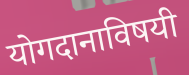
योगदानाविषयी